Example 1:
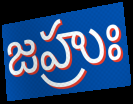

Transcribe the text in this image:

జహ్రుః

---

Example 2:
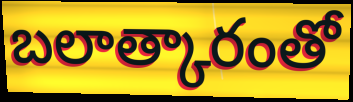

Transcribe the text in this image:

బలాత్కారంతో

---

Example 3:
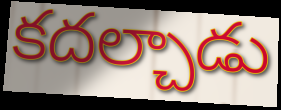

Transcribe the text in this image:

కదల్చాడు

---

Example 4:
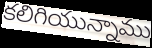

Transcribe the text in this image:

కలిగియున్నాము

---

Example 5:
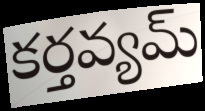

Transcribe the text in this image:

కర్తవ్యమ్